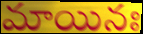
మాయినః